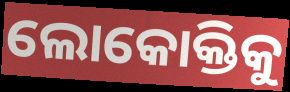
ଲୋକୋକ୍ତିକୁ